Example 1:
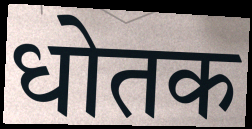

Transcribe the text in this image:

धोतक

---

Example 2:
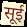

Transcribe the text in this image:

सूई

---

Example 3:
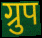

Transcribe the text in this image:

ग्रुप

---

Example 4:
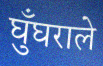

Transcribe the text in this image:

घुँघराले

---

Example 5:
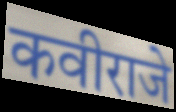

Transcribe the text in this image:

कवीराजे